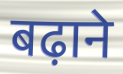
बढ़ाने